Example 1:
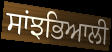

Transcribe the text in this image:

ਸਾਂਝਭਿਆਲੀ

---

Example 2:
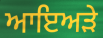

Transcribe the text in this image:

ਆਇਅੜੇ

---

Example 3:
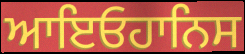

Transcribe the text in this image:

ਆਇਓਹਾਨਿਸ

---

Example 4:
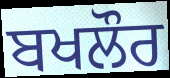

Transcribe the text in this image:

ਬਖਲੌਰ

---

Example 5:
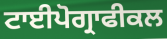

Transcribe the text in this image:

ਟਾਈਪੋਗ੍ਰਾਫੀਕਲ